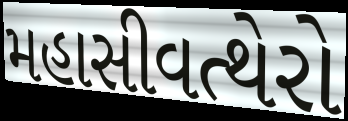
મહાસીવત્થેરો